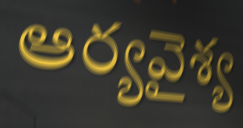
ఆర్యవైశ్య